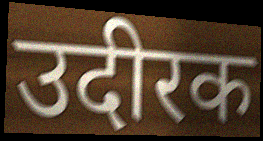
उदीरक